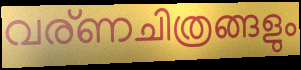
വര്ണചിത്രങ്ങളും